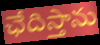
ఛేదిస్తాను